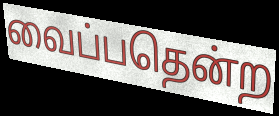
வைப்பதென்ற